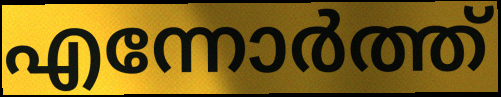
എന്നോർത്ത്